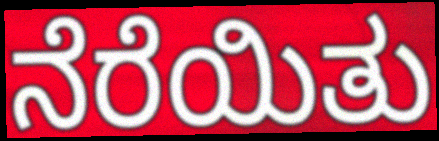
ನೆರೆಯಿತು